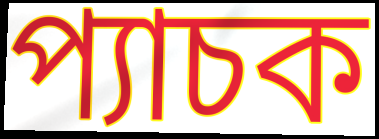
প্যাচক